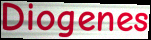
Diogenes